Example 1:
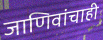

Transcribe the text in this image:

जाणिवांचाही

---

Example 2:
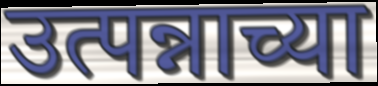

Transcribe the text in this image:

उत्पन्नाच्या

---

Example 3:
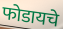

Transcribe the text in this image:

फोडायचे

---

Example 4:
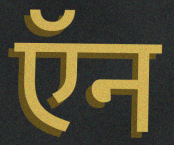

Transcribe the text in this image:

ऍन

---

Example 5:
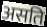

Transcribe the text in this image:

असति